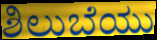
ಶಿಲುಬೆಯು